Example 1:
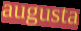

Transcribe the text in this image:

augusta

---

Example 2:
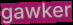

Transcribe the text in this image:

gawker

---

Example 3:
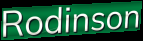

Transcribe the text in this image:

Rodinson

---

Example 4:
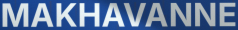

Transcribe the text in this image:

MAKHAVANNE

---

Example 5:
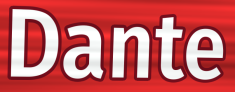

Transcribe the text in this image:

Dante